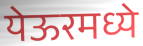
येऊरमध्ये